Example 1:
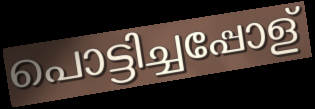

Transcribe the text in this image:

പൊട്ടിച്ചപ്പോള്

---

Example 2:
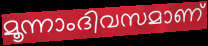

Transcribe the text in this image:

മൂന്നാംദിവസമാണ്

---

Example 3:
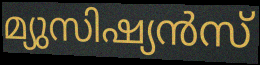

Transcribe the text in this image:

മ്യുസിഷ്യൻസ്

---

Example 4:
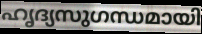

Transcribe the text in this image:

ഹൃദ്യസുഗന്ധമായി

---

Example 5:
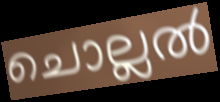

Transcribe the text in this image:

ചൊല്ലൽ